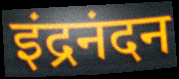
इंद्रनंदन